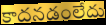
కాదనడంలేదు